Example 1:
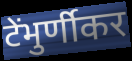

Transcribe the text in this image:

टेंभुर्णीकर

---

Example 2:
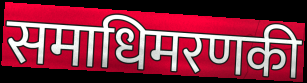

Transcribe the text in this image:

समाधिमरणकी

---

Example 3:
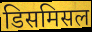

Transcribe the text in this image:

डिसमिसल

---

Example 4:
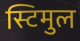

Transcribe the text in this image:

स्टिमुल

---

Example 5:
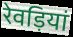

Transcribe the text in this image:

रेवड़ियां